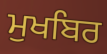
ਮੁਖਬਿਰ